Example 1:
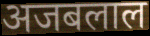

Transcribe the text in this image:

अजबलाल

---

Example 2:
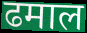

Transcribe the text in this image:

ढमाल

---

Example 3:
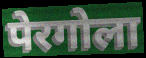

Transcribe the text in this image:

पेरगोला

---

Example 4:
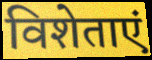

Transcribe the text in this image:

विशेताएं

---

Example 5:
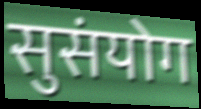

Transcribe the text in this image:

सुसंयोग